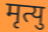
मृत्यु